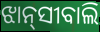
ଝାନ୍‌ସୀବାଲି